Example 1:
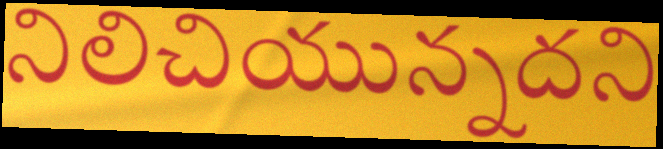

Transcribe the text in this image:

నిలిచియున్నదని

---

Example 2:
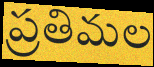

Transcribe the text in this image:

ప్రతిమల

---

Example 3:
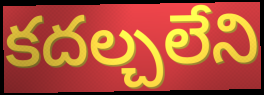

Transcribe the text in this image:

కదల్చలేని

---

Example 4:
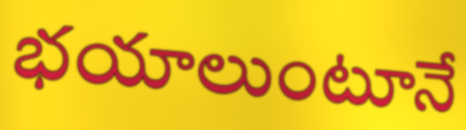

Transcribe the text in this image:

భయాలుంటూనే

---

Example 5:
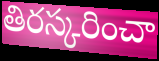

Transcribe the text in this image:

తిరస్కరించా